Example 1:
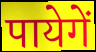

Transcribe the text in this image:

पायेगें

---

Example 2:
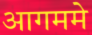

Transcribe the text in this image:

आगममे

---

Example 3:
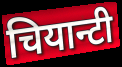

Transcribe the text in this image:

चियान्टी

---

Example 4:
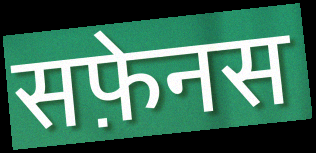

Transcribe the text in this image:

सफ़ेनस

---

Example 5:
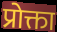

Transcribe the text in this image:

प्रोक्ता